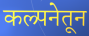
कल्पनेतून